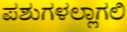
ಪಶುಗಳಲ್ಲಾಗಲಿ